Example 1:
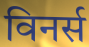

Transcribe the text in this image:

विनर्स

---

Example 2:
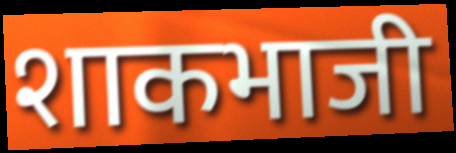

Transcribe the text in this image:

शाकभाजी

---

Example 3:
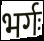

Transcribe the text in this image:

भर्गः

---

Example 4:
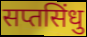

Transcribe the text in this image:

सप्तसिंधु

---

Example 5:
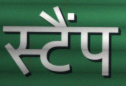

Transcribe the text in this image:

स्टैंप